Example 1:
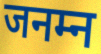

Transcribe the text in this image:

जनम्न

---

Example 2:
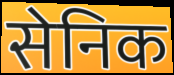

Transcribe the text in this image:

सेनिक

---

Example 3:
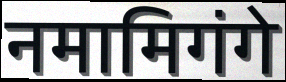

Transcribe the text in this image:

नमामिगंगे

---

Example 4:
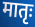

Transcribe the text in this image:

मातृः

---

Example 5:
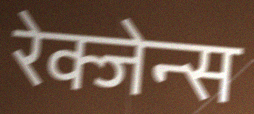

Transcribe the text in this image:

रेक्जेन्स